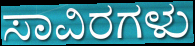
ಸಾವಿರಗಳು